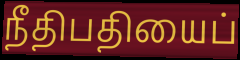
நீதிபதியைப்